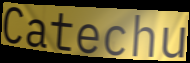
Catechu